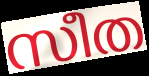
സീത